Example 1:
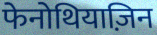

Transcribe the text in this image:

फेनोथियाज़िन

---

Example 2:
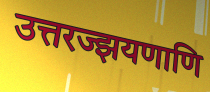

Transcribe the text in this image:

उत्तरज्झयणाणि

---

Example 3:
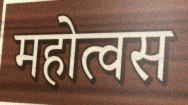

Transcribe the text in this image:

महोत्वस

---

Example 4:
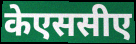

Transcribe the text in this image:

केएससीए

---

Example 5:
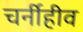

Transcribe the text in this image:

चर्नीहीव